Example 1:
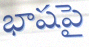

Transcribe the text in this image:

భాషపై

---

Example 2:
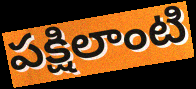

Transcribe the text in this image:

పక్షిలాంటి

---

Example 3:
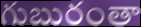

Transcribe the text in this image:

గుబురంతా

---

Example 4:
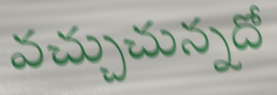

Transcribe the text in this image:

వచ్చుచున్నదో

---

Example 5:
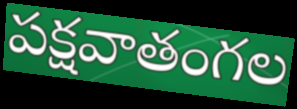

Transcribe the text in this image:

పక్షవాతంగల